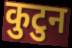
कुटुन